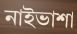
নাইভাশা